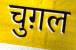
चुग़ल